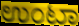
ಉಂಟಾ